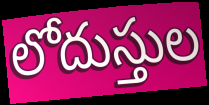
లోదుస్తుల